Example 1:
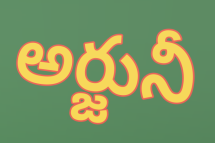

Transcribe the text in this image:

అర్జునీ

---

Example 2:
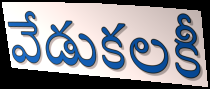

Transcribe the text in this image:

వేడుకలకీ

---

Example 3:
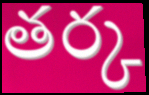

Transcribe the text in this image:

తర్క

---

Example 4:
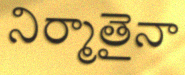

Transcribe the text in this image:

నిర్మాతైనా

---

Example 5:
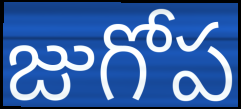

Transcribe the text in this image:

జుగోప